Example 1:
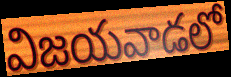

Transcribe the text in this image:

విజయవాడలో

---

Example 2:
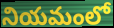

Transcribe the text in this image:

నియమంలో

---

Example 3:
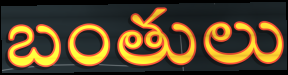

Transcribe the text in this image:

బంతులు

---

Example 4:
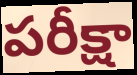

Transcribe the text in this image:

పరీక్షా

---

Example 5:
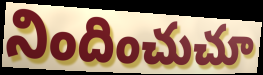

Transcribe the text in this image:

నిందించుచూ